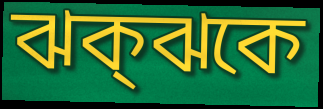
ঝক্‌ঝকে